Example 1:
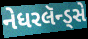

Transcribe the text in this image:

નેધરલૅન્ડ્સે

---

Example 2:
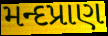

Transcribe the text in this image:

મન્દપ્રાણ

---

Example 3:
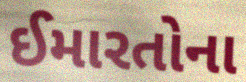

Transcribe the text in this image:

ઈમારતોના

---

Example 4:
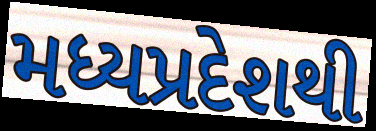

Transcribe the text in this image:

મધ્યપ્રદેશથી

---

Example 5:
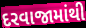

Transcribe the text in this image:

દરવાજામાંથી